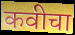
कवीचा